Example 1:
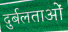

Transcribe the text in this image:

दुर्बलताओं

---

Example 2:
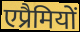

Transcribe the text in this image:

एप्रैमियों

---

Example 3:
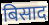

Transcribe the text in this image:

बिसाद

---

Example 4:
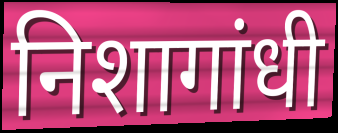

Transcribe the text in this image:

निशागांधी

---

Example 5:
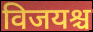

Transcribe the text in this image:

विजयश्च